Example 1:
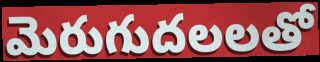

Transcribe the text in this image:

మెరుగుదలలతో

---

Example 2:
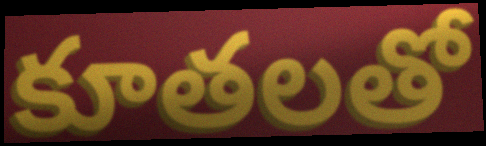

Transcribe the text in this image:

కూతలతో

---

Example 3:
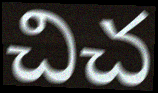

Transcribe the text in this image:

చిచ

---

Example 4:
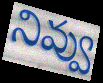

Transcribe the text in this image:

నివ్వు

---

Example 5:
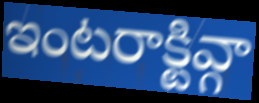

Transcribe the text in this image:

ఇంటరాక్టివ్గా